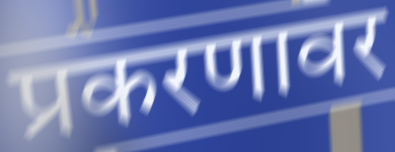
प्रकरणावर